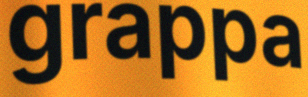
grappa